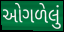
ઓગળેલું